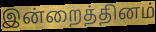
இன்றைத்தினம்